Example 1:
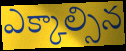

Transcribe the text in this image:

ఎక్కాల్సిన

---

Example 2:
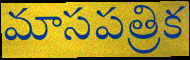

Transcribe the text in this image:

మాసపత్రిక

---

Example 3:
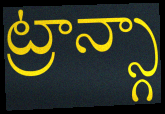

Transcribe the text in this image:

ట్రాన్స్గా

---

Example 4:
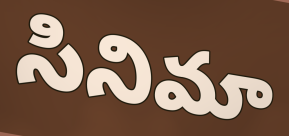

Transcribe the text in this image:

సినిమా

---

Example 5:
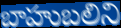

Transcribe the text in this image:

బాహుబలిని